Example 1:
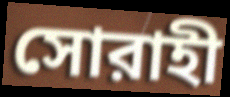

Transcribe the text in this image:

সোরাহী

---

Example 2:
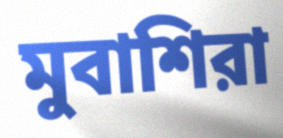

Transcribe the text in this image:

মুবাশিরা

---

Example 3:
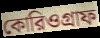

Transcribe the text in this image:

কোরিওগ্রাফ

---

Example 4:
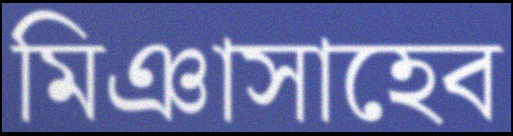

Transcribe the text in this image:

মিঞাসাহেব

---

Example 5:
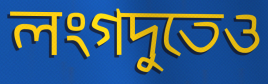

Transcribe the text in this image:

লংগদুতেও